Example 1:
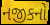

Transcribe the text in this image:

નજીકનો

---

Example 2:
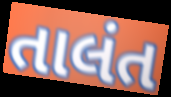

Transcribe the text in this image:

તાલંત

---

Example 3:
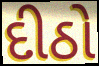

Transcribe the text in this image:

દીઠો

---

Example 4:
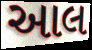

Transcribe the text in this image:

આલ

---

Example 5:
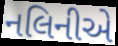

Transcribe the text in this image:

નલિનીએ